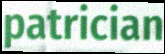
patrician